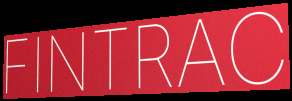
FINTRAC